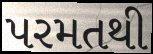
પરમતથી